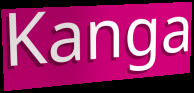
Kanga